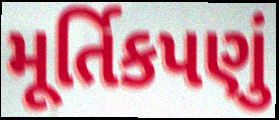
મૂર્તિકપણું